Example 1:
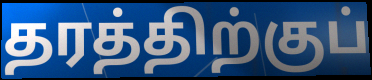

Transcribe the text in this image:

தரத்திற்குப்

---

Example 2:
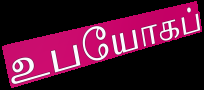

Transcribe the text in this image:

உபயோகப்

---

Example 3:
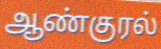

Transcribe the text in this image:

ஆண்குரல்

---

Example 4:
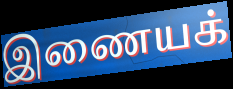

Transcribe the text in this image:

இணையக்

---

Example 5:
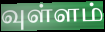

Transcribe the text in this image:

வுள்ளம்